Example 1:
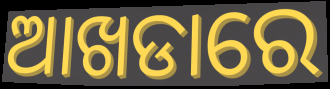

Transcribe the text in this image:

ଆଖଡାରେ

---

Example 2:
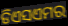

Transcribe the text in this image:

ଡିଏସଏମର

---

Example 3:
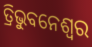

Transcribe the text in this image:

ତ୍ରିଭୁବନେଶ୍ବର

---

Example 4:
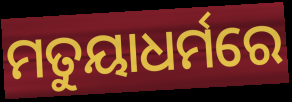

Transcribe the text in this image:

ମତୁୟାଧର୍ମରେ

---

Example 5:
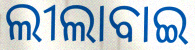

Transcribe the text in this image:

ଲୀଲାବାଇ